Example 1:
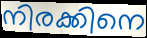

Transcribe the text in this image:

നിരക്കിനെ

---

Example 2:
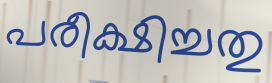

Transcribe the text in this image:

പരീക്ഷിച്ചതു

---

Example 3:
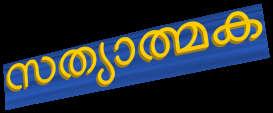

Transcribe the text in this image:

സത്യാത്മക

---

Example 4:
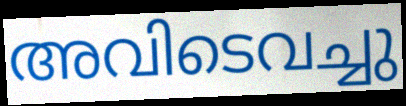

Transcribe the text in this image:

അവിടെവച്ചു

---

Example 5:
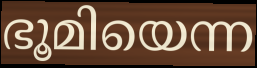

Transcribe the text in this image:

ഭൂമിയെന്ന